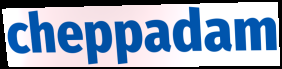
cheppadam